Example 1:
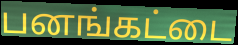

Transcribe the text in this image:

பனங்கட்டை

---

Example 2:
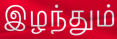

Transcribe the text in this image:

இழந்தும்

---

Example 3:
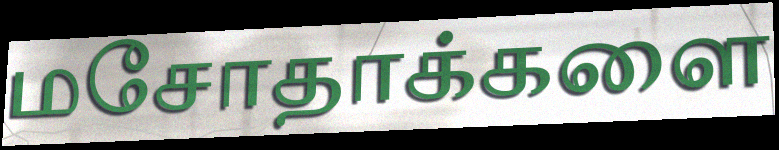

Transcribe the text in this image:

மசோதாக்களை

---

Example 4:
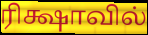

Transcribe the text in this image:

ரிக்ஷாவில்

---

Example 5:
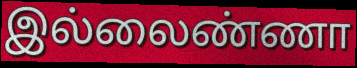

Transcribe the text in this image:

இல்லைண்ணா